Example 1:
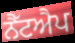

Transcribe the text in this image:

ਨੈੱਟਐਪ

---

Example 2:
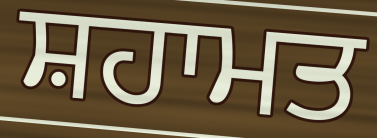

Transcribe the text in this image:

ਸ਼ਹਾਮਤ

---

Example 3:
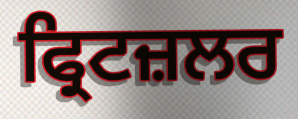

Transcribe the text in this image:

ਫ੍ਰਿਟਜ਼ਲਰ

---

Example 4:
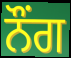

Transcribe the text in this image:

ਨੌਂਗ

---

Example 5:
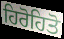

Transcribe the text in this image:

ਹਿਰੋਹਿਤੋ